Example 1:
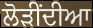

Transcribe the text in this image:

ਲੋੜੀਂਦੀਆ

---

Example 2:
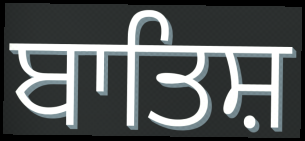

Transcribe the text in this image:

ਬਾਤਿਸ਼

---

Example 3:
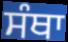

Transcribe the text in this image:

ਸੰਥਾ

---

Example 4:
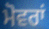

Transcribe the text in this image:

ਮੋਵਰਾਂ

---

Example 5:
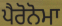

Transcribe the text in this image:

ਪੈਰੋਨੋਮਾ